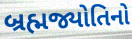
બ્રહ્મજ્યોતિનો